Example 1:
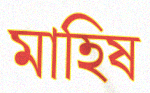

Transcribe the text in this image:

মাহিষ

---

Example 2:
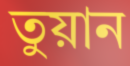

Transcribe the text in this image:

তুয়ান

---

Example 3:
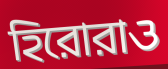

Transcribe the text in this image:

হিরোরাও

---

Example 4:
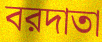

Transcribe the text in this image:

বরদাতা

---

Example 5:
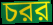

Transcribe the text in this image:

চরর